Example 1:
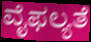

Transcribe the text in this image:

ವೈಫಲ್ಯತೆ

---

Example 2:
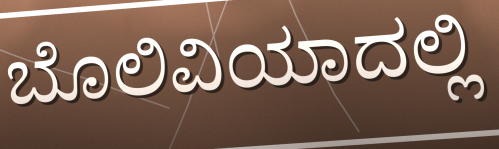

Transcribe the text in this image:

ಬೊಲಿವಿಯಾದಲ್ಲಿ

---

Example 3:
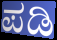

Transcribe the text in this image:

ಪಡಿ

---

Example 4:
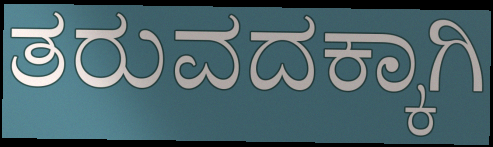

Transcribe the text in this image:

ತರುವದಕ್ಕಾಗಿ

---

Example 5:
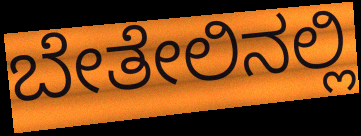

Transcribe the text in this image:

ಬೇತೇಲಿನಲ್ಲಿ